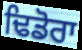
ਢਿਡੋਰਾ